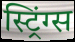
स्ट्रिंग्स